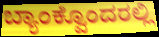
ಬ್ಯಾಂಕ್ವೊಂದರಲ್ಲಿ